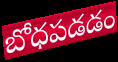
బోధపడడం